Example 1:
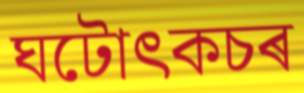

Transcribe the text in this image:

ঘটোৎকচৰ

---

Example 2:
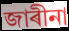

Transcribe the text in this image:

জাৰীনা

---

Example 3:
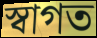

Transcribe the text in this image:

স্বাগত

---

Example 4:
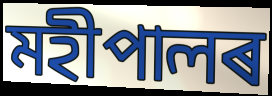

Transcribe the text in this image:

মহীপালৰ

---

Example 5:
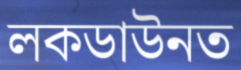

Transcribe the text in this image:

লকডাউনত